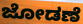
ಜೋಡಣೆ